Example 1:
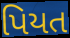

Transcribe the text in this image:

પિયત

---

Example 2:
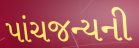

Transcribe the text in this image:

પાંચજન્યની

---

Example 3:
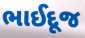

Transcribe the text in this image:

ભાઈદૂજ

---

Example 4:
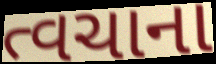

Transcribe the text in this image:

ત્વચાના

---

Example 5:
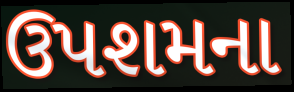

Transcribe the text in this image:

ઉપશમના